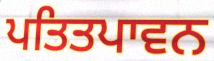
ਪਤਿਤਪਾਵਨ